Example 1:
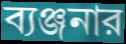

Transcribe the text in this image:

ব্যঞ্জনার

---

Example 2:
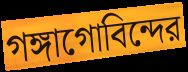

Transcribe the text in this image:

গঙ্গাগোবিন্দের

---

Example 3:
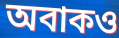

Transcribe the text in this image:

অবাকও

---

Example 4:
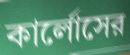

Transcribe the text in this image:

কার্লোসের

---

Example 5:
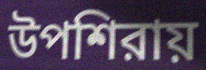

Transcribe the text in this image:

উপশিরায়